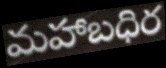
మహాబధిర